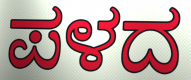
ಪಳದ